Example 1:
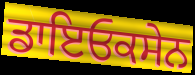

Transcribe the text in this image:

ਡਾਇਓਕਸੇਨ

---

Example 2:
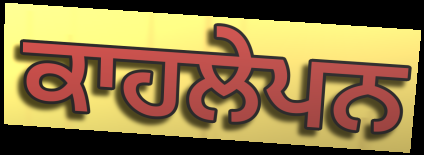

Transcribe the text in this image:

ਕਾਹਲੇਪਨ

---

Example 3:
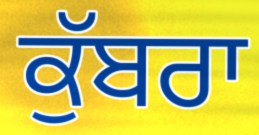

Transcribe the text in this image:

ਕੁੱਬਰਾ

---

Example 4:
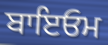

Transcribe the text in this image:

ਬਾਇਓਮ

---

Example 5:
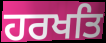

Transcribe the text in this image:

ਹਰਖਤਿ